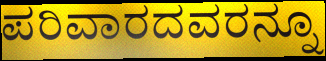
ಪರಿವಾರದವರನ್ನೂ